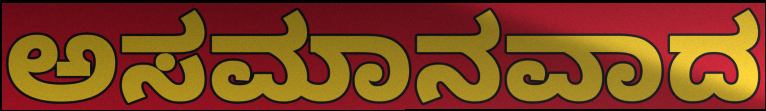
ಅಸಮಾನವಾದ